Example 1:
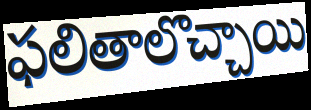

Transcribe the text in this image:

ఫలితాలొచ్చాయి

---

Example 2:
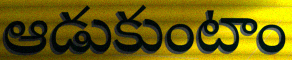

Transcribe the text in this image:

ఆడుకుంటాం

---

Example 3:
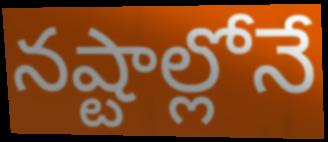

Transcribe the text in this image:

నష్టాల్లోనే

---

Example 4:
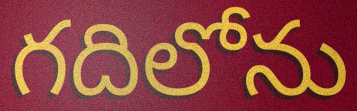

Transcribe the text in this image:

గదిలోను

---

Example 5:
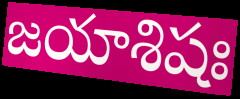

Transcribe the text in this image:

జయాశిషః